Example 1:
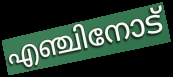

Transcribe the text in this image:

എഞ്ചിനോട്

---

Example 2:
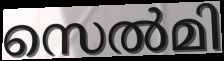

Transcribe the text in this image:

സെൽമി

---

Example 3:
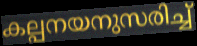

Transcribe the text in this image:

കല്പനയനുസരിച്ച്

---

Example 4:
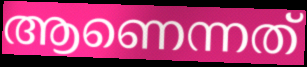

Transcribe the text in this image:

ആണെന്നത്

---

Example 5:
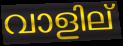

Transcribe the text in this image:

വാളില്